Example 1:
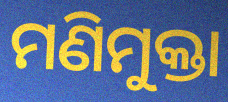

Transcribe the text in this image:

ମଣିମୁକ୍ତା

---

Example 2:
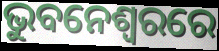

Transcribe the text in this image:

ଭୁବନେଶ୍ଵରରେ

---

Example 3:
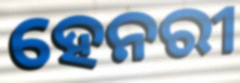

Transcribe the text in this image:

ହେନରୀ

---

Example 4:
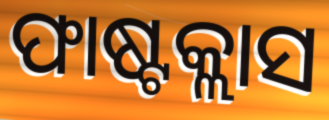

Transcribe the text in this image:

ଫାଷ୍ଟକ୍ଲାସ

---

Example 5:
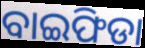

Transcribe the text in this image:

ବାଇଫିଡା